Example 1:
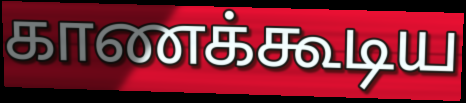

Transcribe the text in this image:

காணக்கூடிய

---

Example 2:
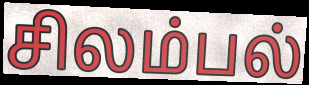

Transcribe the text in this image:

சிலம்பல்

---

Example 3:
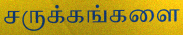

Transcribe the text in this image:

சருக்கங்களை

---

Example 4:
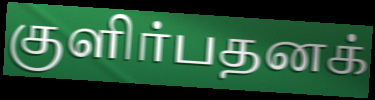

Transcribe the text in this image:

குளிர்பதனக்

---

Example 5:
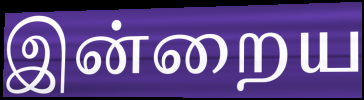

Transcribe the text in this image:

இன்றைய